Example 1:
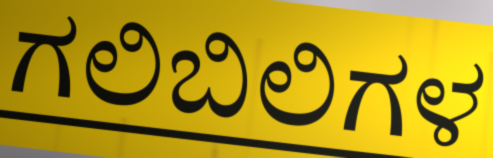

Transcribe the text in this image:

ಗಲಿಬಿಲಿಗಳ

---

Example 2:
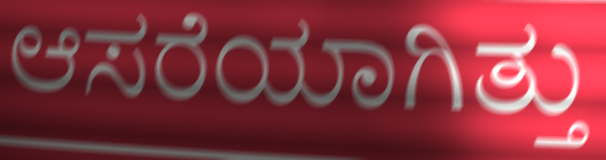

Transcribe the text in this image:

ಆಸರೆಯಾಗಿತ್ತು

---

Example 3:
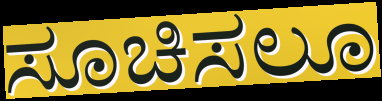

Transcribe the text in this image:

ಸೂಚಿಸಲೂ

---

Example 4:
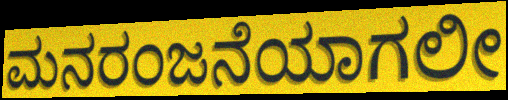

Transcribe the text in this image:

ಮನರಂಜನೆಯಾಗಲೀ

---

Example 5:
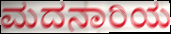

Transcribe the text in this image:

ಮದನಾರಿಯ